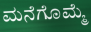
ಮನೆಗೊಮ್ಮೆ